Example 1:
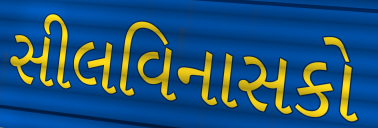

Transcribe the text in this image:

સીલવિનાસકો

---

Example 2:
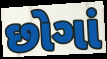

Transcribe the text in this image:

છોગાં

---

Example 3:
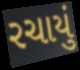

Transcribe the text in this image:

રચાયું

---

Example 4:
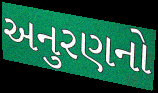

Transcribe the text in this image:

અનુરણનો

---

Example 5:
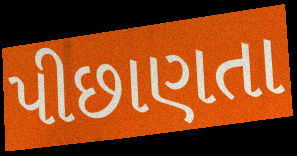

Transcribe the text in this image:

પીછાણતા